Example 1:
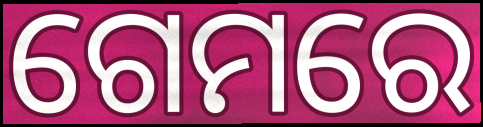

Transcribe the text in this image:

ଗେମରେ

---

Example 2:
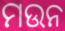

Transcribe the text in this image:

ମଉନ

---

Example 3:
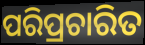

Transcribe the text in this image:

ପରିପ୍ରଚାରିତ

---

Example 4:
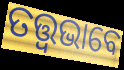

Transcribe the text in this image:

ତତ୍ତ୍ଵଭାବେ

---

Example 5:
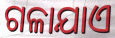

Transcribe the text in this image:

ଗଳାଯାଏ